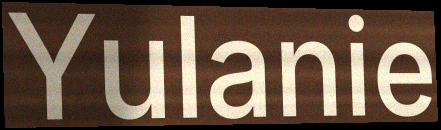
Yulanie